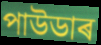
পাউডাৰ